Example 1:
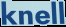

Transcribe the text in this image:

knell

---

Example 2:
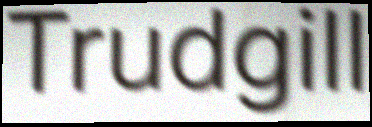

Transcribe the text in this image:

Trudgill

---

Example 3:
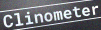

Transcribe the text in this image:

Clinometer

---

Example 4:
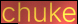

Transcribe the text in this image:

chuke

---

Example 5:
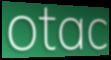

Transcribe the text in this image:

otac